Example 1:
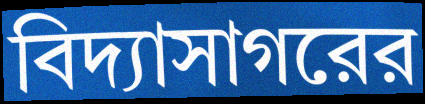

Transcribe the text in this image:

বিদ্যাসাগরের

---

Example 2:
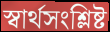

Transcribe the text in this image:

স্বার্থসংশ্লিষ্ট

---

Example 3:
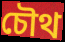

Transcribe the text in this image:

চৌথ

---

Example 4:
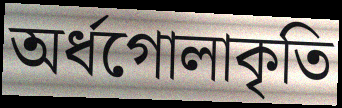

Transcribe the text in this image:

অর্ধগোলাকৃতি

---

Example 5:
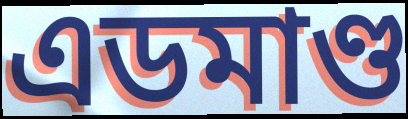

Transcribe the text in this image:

এডমাণ্ড